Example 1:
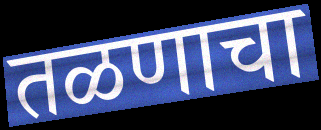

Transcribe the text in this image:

तळणाचा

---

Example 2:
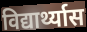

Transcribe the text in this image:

विद्यार्थ्यास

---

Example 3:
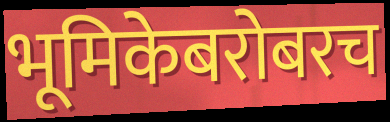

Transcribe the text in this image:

भूमिकेबरोबरच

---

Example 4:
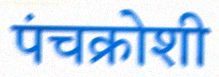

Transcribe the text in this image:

पंचक्रोशी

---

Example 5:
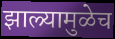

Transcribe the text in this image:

झाल्यामुळेच